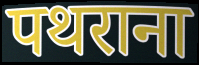
पथराना